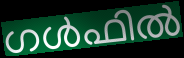
ഗൾഫിൽ